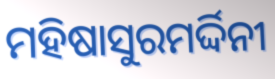
ମହିଷାସୁରମର୍ଦ୍ଦିନୀ